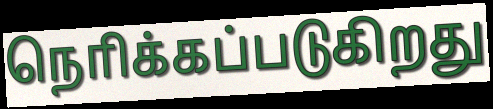
நெரிக்கப்படுகிறது